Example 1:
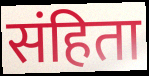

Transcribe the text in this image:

संहिता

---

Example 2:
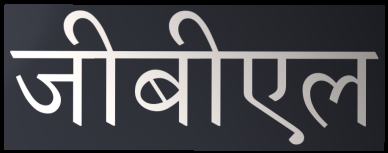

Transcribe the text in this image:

जीबीएल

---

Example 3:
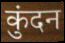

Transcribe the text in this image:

कुंदन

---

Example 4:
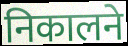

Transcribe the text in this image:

निकालने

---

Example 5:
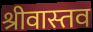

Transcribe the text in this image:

श्रीवास्‍तव